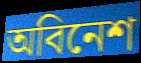
অবিনেশ